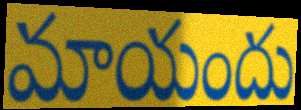
మాయందు